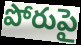
పోరుపై